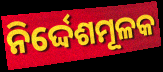
ନିର୍ଦ୍ଦେଶମୂଳକ